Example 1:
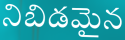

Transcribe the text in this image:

నిబిడమైన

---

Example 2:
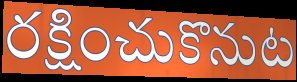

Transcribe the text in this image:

రక్షించుకొనుట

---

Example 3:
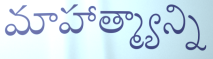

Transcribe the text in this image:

మాహాత్మ్యాన్ని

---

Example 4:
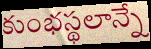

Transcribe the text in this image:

కుంభస్థలాన్నే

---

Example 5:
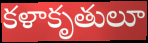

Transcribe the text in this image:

కళాకృతులూ